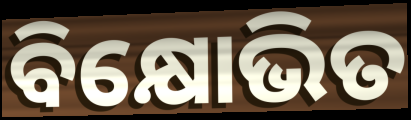
ବିକ୍ଷୋଭିତ